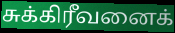
சுக்கிரீவனைக்